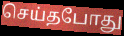
செய்தபோது